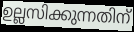
ഉല്ലസിക്കുന്നതിന്